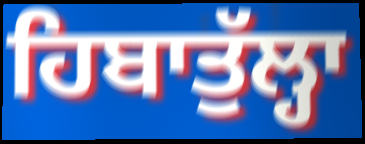
ਹਿਬਾਤੁੱਲ੍ਹਾ